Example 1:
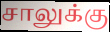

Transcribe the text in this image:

சாலுக்கு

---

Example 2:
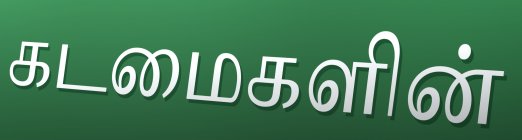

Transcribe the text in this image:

கடமைகளின்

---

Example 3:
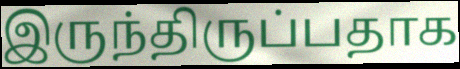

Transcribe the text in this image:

இருந்திருப்பதாக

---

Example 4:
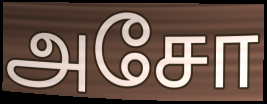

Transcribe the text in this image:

அசோ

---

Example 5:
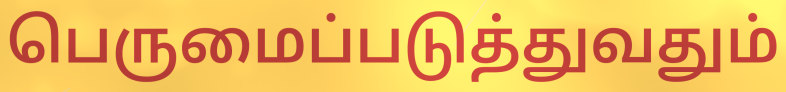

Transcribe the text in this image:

பெருமைப்படுத்துவதும்